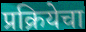
प्रक्रियेचा